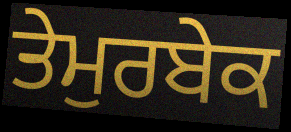
ਤੇਮੁਰਬੇਕ